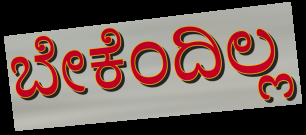
ಬೇಕೆಂದಿಲ್ಲ